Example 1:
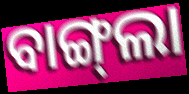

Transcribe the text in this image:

ବାଙ୍ଗ୍‍ଲା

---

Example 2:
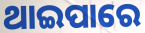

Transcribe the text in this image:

ଥାଇପାରେ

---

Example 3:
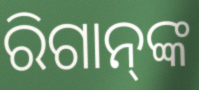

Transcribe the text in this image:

ରିଗାନ୍‌ଙ୍କ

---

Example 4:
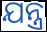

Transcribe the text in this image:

ଯନ୍ତ୍ର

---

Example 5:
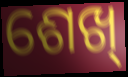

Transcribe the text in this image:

ଶେଖ୍